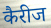
कैरीज